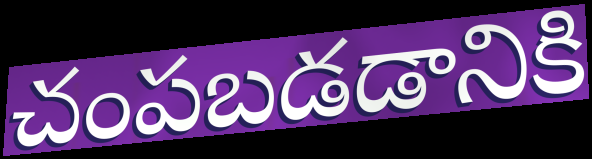
చంపబడడానికి